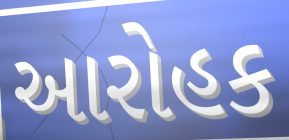
આરોહક